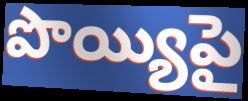
పొయ్యిపై